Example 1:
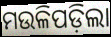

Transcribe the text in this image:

ମଉଳିପଡ଼ିଲା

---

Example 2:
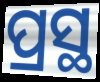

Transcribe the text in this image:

ପ୍ରସ୍ଥ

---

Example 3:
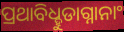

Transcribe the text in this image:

ପ୍ରଥାବିଧ୍ହୁଡାଗ୍ନାନାଂ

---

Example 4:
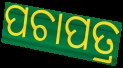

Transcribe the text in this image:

ପଚାପତ୍ର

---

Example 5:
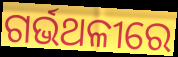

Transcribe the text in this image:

ଗର୍ଭଥଳୀରେ